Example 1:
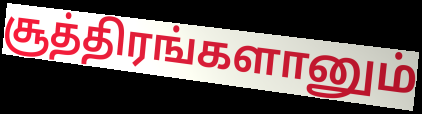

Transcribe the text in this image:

சூத்திரங்களானும்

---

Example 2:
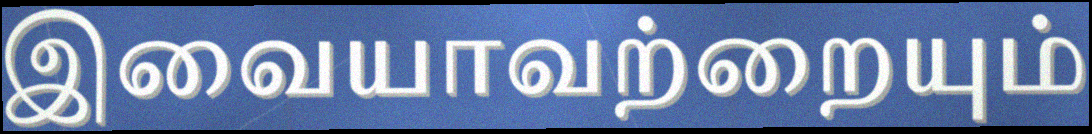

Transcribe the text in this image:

இவையாவற்றையும்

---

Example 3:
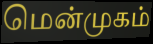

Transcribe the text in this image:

மென்முகம்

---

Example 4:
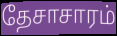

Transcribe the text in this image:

தேசாசாரம்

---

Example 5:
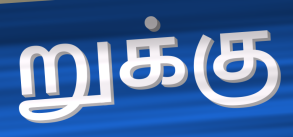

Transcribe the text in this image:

றுக்கு